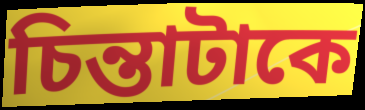
চিন্তাটাকে